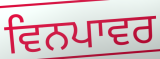
ਵਿਨਪਾਵਰ